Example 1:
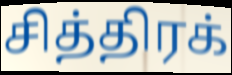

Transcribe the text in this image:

சித்திரக்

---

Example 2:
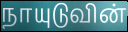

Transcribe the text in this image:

நாயுடுவின்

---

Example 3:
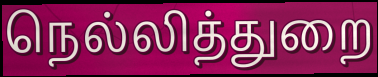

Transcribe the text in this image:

நெல்லித்துறை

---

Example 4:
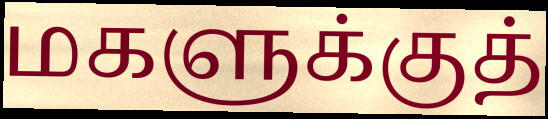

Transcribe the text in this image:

மகளுக்குத்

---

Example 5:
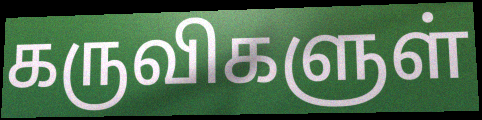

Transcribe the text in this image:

கருவிகளுள்